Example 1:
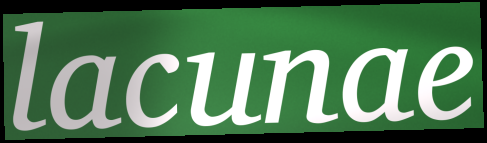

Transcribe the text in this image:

lacunae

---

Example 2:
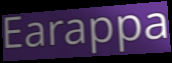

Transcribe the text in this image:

Earappa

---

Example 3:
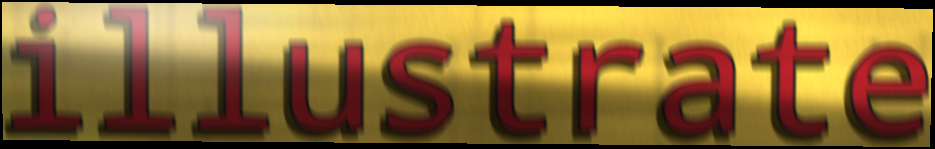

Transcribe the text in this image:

illustrate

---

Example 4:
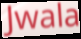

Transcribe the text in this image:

Jwala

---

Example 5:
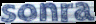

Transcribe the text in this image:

sonra